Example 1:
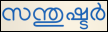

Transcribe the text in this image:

സന്തുഷ്ടർ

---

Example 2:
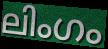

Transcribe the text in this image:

ലിംഗം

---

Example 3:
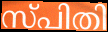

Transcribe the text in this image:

സ്പിതി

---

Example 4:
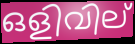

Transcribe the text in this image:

ഒളിവില്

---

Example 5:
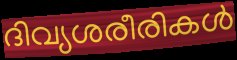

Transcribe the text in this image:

ദിവ്യശരീരികൾ